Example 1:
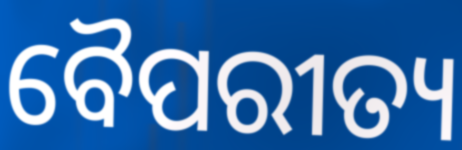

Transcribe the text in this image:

ବୈପରୀତ୍ୟ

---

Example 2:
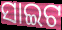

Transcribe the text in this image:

ସାଇଟ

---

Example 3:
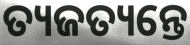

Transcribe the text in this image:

ତ୍ୟଜତ୍ୟନ୍ତେ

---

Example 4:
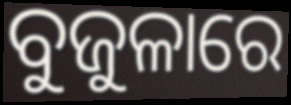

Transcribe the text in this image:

ବୁଜୁଳାରେ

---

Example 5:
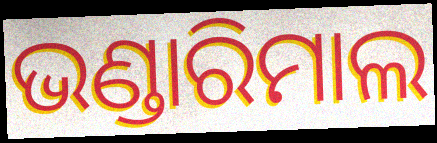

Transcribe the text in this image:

ଭଣ୍ଡାରିମାଲ